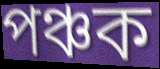
পঞ্চক